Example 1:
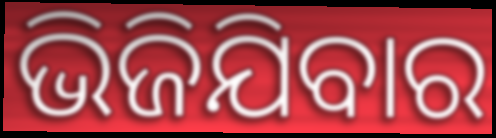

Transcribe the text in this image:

ଭିଜିଯିବାର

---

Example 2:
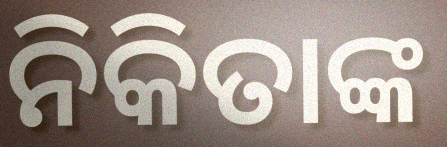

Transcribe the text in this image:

ନିକିତାଙ୍କ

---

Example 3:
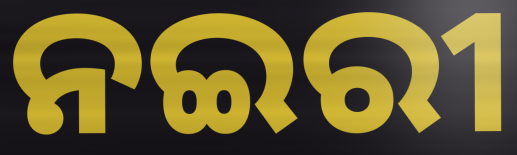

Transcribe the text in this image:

ନଇରୀ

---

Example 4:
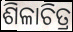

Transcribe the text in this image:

ଶିଳାଚିତ୍ର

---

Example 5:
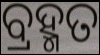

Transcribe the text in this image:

ବ୍ରହ୍ମତ